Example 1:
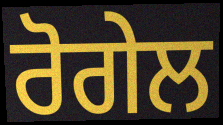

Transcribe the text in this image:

ਰੋਗੇਲ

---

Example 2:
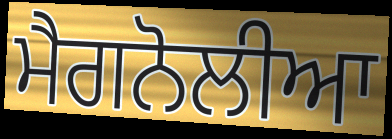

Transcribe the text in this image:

ਮੈਗਨੋਲੀਆ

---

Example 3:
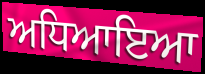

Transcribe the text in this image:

ਅਧਿਆਇਆ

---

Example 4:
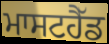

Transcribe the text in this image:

ਮਾਸਟਹੈੱਡ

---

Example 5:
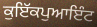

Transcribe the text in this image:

ਕੁਇੱਕਪੁਆਇੰਟ